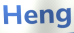
Heng